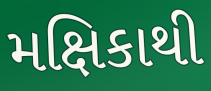
મક્ષિકાથી